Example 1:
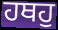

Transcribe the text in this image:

ਹਥਹੁ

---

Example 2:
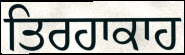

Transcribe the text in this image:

ਤਿਰਹਾਕਾਹ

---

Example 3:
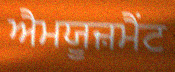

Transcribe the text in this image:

ਐਮਯੂਜ਼ਮੈਂਟ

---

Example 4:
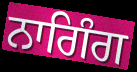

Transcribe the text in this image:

ਨਾਗਿੰਗ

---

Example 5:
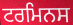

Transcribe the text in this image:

ਟਰਮਿਨਸ